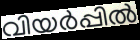
വിയർപ്പിൽ